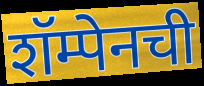
शॅम्पेनची